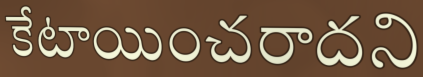
కేటాయించరాదని